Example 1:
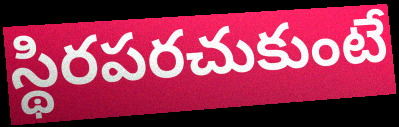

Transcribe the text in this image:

స్థిరపరచుకుంటే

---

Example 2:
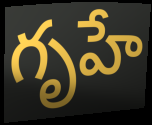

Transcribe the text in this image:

గృహే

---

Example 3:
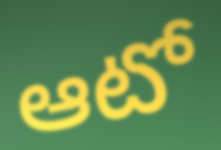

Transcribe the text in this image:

ఆటో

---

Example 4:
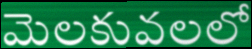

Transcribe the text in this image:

మెలకువలలో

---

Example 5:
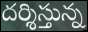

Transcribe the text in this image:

దర్శిస్తున్న